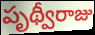
పృథ్వీరాజు